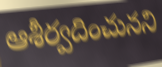
ఆశీర్వదించునని